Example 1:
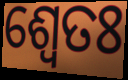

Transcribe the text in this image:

ଶ୍ଵେତଃ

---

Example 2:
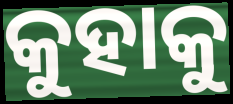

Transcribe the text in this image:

କୁହାକୁ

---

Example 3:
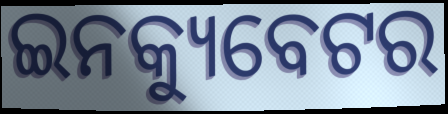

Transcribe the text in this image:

ଇନକ୍ୟୁବେଟର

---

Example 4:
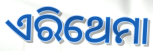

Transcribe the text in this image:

ଏରିଥେମା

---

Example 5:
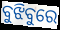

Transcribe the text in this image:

ବୁଝିବୁରେ